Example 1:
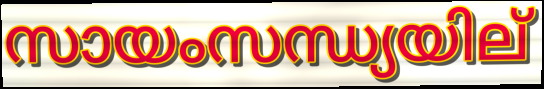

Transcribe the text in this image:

സായംസന്ധ്യയില്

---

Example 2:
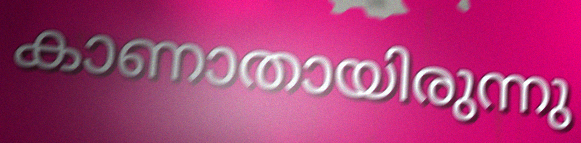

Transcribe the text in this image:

കാണാതായിരുന്നു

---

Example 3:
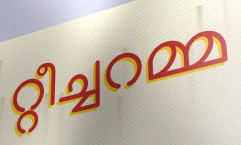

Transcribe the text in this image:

റ്റീച്ചറമ്മ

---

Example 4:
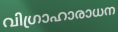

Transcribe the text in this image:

വിഗ്രാഹാരാധന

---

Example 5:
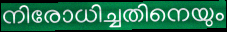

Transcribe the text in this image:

നിരോധിച്ചതിനെയും